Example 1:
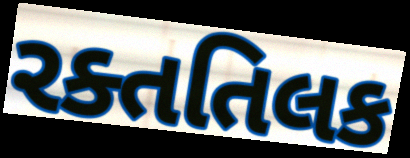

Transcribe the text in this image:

રક્તતિલક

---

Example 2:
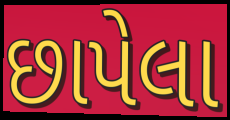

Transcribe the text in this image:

છાપેલા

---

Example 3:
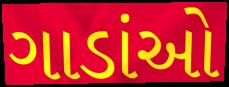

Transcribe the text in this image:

ગાડાંઓ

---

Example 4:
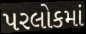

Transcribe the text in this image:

પરલોકમાં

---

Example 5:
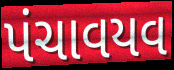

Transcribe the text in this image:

પંચાવયવ